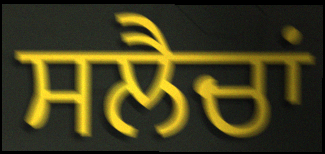
ਸਲੈਚਾਂ